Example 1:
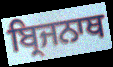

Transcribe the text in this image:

ਬ੍ਰਿਜਨਾਥ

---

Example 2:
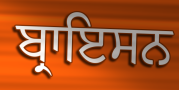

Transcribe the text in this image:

ਬ੍ਰਾਇਸਨ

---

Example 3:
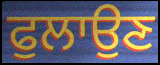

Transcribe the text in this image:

ਫੁਲਾਉਣ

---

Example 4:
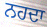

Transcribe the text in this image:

ਨਹਦਾ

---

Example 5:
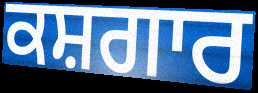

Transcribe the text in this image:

ਕਸ਼ਗਾਰ